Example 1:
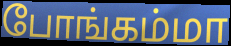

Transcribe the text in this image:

போங்கம்மா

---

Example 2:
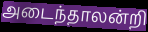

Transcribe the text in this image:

அடைந்தாலன்றி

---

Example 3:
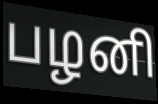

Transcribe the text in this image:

பழனி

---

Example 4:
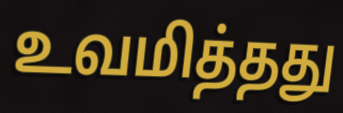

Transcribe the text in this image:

உவமித்தது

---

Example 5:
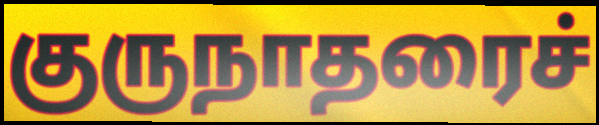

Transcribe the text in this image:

குருநாதரைச்